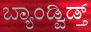
ಬ್ಯಾಂಡ್ವಿಡ್ತ್